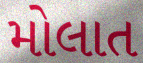
મોલાત